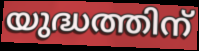
യുദ്ധത്തിന്